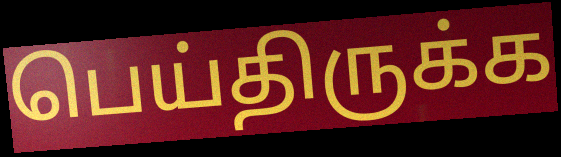
பெய்திருக்க